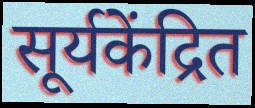
सूर्यकेंद्रित